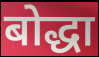
बोद्धा